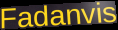
Fadanvis